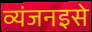
व्यंजनइसे